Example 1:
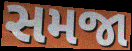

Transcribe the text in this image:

સમજા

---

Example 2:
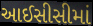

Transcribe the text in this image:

આઈસીસીમાં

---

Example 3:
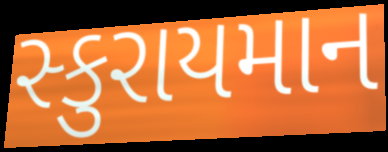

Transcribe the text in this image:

સ્કુરાયમાન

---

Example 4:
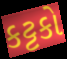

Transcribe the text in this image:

કટ્ટકો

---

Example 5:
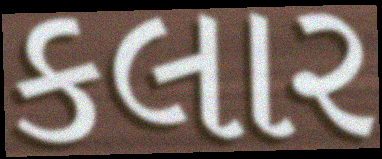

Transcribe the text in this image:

કલાર